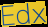
Edx